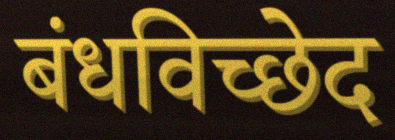
बंधविच्छेद